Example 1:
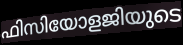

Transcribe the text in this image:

ഫിസിയോളജിയുടെ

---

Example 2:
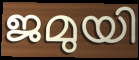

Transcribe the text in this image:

ജമുയി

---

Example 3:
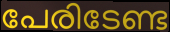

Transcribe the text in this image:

പേരിടേണ്ട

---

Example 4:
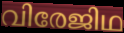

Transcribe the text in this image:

വിരേജിഥ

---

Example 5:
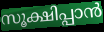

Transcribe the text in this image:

സൂക്ഷിപ്പാൻ